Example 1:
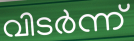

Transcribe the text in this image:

വിടർന്ന്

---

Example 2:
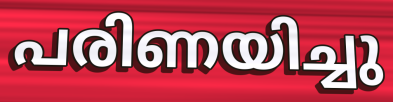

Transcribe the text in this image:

പരിണയിച്ചു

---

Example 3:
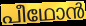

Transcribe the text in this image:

പീഥോൻ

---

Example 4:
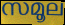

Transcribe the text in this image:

സമൂല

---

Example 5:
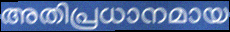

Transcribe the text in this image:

അതിപ്രധാനമായ